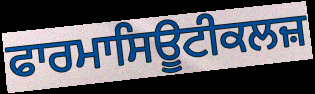
ਫਾਰਮਾਸਿਊਟੀਕਲਜ਼